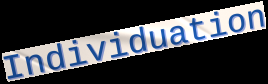
Individuation